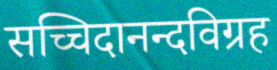
सच्चिदानन्दविग्रह